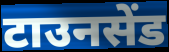
टाउनसेंड